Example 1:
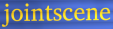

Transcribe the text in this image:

jointscene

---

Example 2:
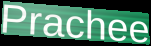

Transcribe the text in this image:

Prachee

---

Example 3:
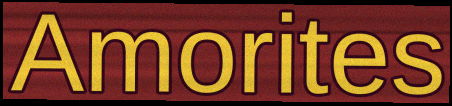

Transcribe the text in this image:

Amorites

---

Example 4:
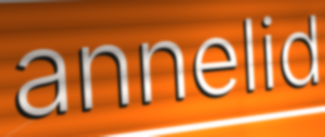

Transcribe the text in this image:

annelid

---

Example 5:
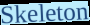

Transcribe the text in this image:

Skeleton